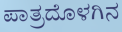
ಪಾತ್ರದೊಳಗಿನ